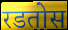
रडतोस